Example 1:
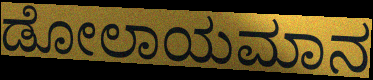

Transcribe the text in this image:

ಡೋಲಾಯಮಾನ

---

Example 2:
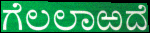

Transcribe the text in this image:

ಗೆಲಲಾಱದೆ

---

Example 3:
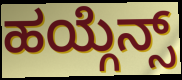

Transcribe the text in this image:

ಹಯ್ಗೆನ್ಸ್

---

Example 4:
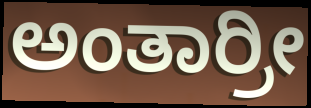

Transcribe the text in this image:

ಅಂತಾರ್ರೀ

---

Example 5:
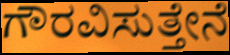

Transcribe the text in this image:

ಗೌರವಿಸುತ್ತೇನೆ